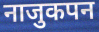
नाजुकपन